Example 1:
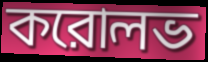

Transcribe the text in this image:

করোলভ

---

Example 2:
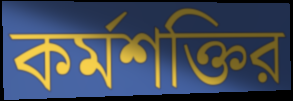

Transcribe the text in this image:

কর্মশক্তির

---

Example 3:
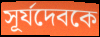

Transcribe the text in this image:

সূর্যদেবকে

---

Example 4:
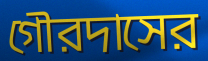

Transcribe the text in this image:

গৌরদাসের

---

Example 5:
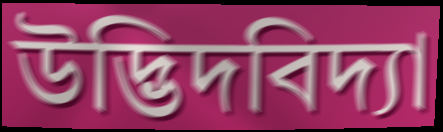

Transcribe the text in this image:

উদ্ভিদবিদ্যা